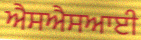
ਐਸਐਸਆਈ